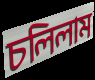
চলিলাম